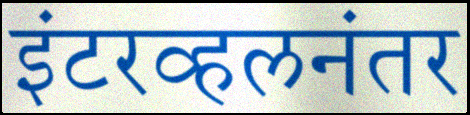
इंटरव्हलनंतर